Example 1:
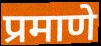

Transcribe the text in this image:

प्रमाणे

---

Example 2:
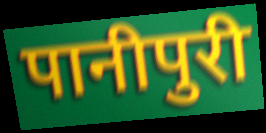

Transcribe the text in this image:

पानीपुरी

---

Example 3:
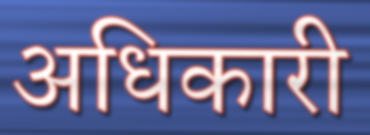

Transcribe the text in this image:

अधिकारी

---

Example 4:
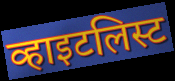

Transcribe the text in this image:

व्हाइटलिस्ट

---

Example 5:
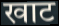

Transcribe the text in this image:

खाट